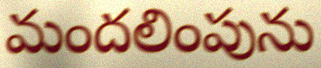
మందలింపును